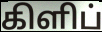
கிளிப்